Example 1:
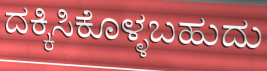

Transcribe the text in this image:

ದಕ್ಕಿಸಿಕೊಳ್ಳಬಹುದು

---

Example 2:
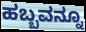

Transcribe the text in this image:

ಹಬ್ಬವನ್ನೂ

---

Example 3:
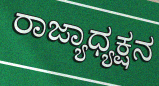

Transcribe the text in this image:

ರಾಜ್ಯಾಧ್ಯಕ್ಷನ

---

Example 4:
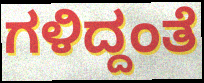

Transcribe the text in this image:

ಗಳಿದ್ದಂತೆ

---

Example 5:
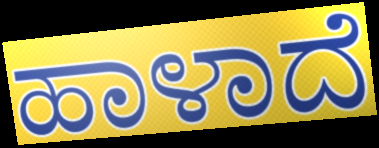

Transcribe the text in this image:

ಹಾಳಾದೆ